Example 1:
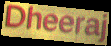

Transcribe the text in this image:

Dheeraj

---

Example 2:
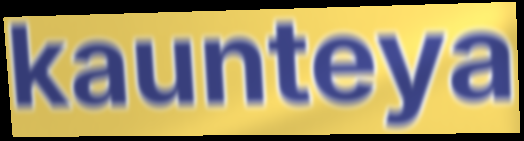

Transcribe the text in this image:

kaunteya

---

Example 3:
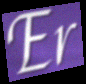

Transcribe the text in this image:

Er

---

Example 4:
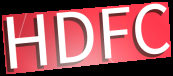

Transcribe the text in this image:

HDFC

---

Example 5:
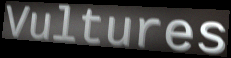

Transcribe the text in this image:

Vultures